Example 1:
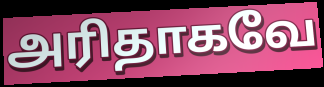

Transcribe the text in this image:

அரிதாகவே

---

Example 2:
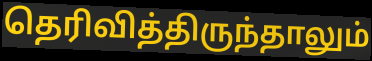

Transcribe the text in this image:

தெரிவித்திருந்தாலும்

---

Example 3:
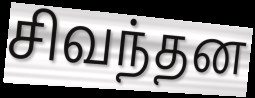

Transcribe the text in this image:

சிவந்தன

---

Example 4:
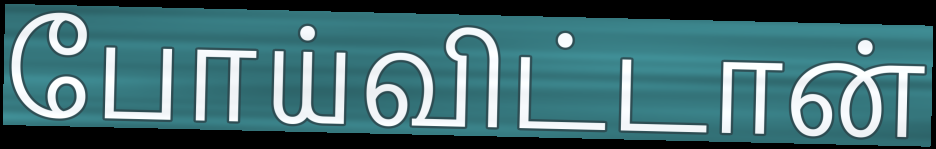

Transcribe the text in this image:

போய்விட்டான்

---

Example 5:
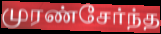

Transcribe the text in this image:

முரண்சேர்ந்த